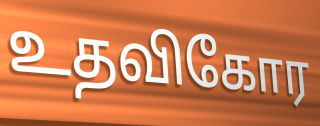
உதவிகோர